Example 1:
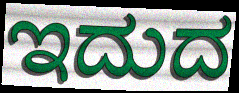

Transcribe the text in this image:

ಇದುದ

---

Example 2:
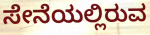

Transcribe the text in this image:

ಸೇನೆಯಲ್ಲಿರುವ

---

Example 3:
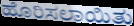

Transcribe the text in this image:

ಹೊರಿಸಲಾಯಿತು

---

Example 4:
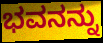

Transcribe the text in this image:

ಭವನನ್ನು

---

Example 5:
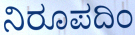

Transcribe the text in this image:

ನಿರೂಪದಿಂ